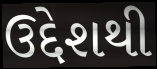
ઉદ્દેશથી